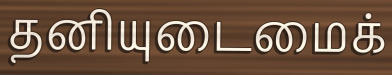
தனியுடைமைக்